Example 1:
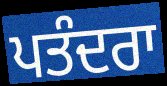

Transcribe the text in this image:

ਪਤੰਦਰਾ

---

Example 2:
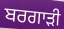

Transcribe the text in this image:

ਬਰਗਾੜੀ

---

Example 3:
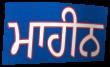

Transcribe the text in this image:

ਮਾਹੀਨ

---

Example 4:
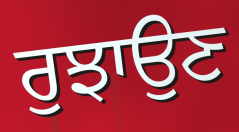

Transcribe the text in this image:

ਰੁਝਾਉਣ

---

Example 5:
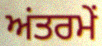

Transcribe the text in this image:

ਅਂਤਰਮੇਂ